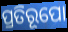
ପ୍ରତିରୂପୋ